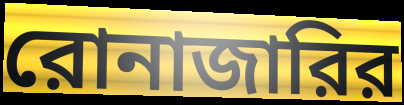
রোনাজারির